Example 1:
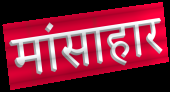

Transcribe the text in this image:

मांसाहार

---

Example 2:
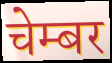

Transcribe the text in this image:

चेम्बर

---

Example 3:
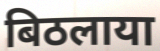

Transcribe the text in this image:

बिठलाया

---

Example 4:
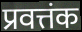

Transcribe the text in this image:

प्रवत्तंक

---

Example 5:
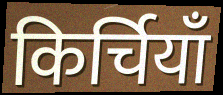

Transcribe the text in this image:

किर्चियाँ